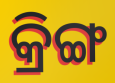
କ୍ରିଙ୍ଗ